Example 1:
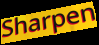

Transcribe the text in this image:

Sharpen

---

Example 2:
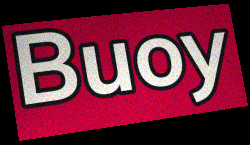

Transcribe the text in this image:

Buoy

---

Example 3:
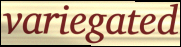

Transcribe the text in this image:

variegated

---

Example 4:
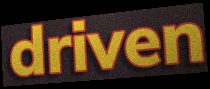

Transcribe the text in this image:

driven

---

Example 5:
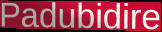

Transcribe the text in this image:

Padubidire